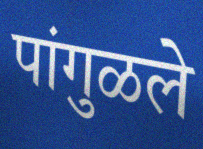
पांगुळले